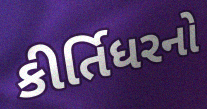
કીર્તિધરનો